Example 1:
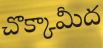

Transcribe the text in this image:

చొక్కామీద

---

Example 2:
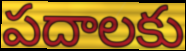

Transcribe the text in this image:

పదాలకు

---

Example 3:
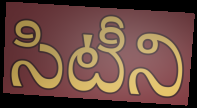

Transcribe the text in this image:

సిటీని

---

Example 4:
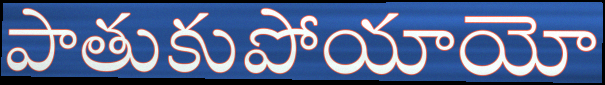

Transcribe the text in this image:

పాతుకుపోయాయో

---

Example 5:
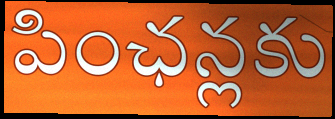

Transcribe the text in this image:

పింఛన్లకు